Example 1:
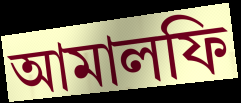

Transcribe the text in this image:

আমালফি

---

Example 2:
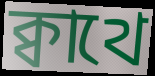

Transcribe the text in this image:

ক্বাথে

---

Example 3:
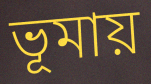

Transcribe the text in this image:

ভূমায়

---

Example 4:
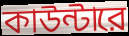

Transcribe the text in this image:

কাউন্টারে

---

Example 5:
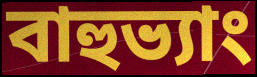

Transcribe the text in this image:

বাহুভ্যাং